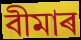
বীমাৰ